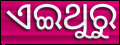
ଏଇଥୁରୁ